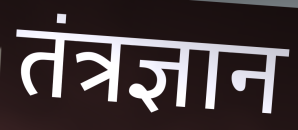
तंत्रज्ञान